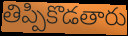
తిప్పికొడతారు